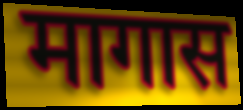
मागास